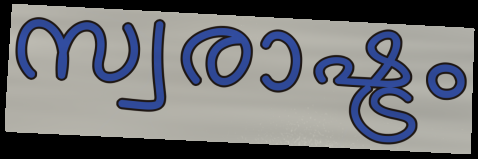
സ്വരാഷ്ട്രം